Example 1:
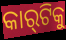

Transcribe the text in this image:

କାର୍‍ଟିକୁ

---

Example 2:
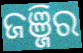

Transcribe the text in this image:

ଜଞ୍ଜିର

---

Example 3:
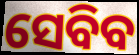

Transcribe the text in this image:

ସେବିବ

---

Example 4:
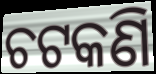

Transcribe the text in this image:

ଚଟକଣି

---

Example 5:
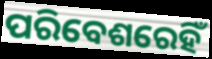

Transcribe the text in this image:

ପରିବେଶରେହିଁ